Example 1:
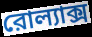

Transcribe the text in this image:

রোল্যাক্স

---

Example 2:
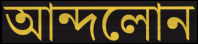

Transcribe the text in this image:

আন্দলোন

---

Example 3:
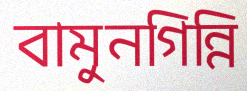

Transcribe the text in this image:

বামুনগিন্নি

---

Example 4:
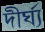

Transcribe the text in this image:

দীর্ঘ্য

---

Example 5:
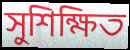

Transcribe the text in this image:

সুশিক্ষিত